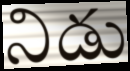
నిడు